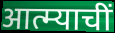
आत्म्याचीं